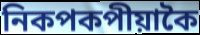
নিকপকপীয়াকৈ